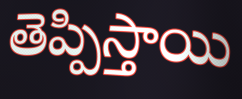
తెప్పిస్తాయి